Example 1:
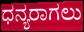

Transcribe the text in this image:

ಧನ್ಯರಾಗಲು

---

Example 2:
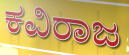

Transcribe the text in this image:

ಕವಿರಾಜ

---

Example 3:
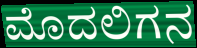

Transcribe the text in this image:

ಮೊದಲಿಗನ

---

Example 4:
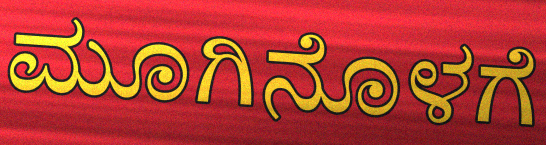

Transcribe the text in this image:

ಮೂಗಿನೊಳಗೆ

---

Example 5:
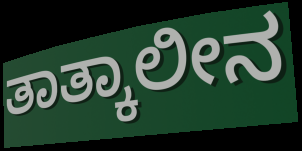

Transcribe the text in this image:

ತಾತ್ಕಾಲೀನ